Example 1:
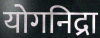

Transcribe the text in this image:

योगनिद्रा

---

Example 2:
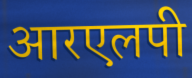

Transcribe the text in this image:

आरएलपी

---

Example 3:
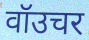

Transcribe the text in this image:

वॉउचर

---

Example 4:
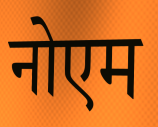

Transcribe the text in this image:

नोएम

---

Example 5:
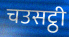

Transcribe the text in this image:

चउसट्ठी